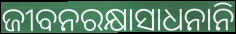
ଜୀବନରକ୍ଷାସାଧନାନି